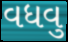
વધવુ